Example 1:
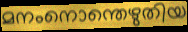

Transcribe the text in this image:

മനംനൊന്തെഴുതിയ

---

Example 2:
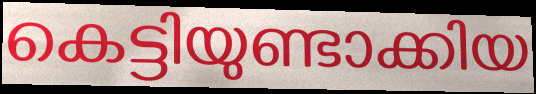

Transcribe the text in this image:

കെട്ടിയുണ്ടാക്കിയ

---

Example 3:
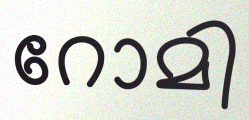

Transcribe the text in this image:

റോമി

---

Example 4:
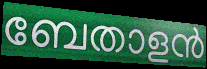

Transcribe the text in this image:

ബേതാളൻ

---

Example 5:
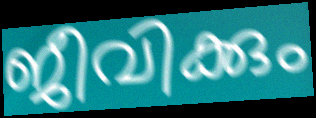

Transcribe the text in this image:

ജീവിക്കും